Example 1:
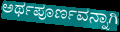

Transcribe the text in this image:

ಅರ್ಥಪೂರ್ಣವನ್ನಾಗಿ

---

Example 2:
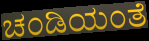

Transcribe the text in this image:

ಚಂಡಿಯಂತೆ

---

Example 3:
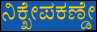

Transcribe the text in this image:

ನಿಕ್ಖೇಪಕಣ್ಡೇ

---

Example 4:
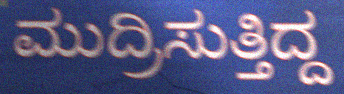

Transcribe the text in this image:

ಮುದ್ರಿಸುತ್ತಿದ್ದ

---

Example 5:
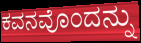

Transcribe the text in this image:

ಕವನವೊಂದನ್ನು